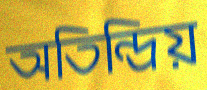
অতিন্দ্রিয়